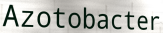
Azotobacter